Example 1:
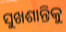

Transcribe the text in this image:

ସୁଖଶାନ୍ତିକୁ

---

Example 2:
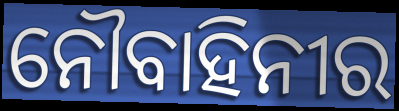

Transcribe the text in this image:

ନୌବାହିନୀର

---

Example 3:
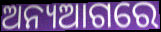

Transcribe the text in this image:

ଅନ୍ୟଆଗରେ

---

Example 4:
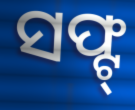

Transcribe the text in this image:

ସଫ୍ଟ୍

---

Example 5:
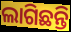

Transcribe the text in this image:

ଲାଗିଛନ୍ତି